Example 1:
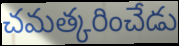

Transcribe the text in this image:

చమత్కరించేడు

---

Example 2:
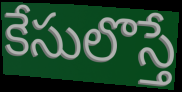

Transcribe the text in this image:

కేసులొస్తే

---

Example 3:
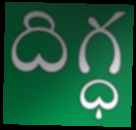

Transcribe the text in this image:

దిగ్ధ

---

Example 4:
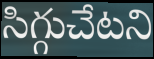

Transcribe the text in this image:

సిగ్గుచేటని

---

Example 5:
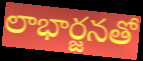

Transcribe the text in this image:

లాభార్జనతో